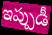
ఇప్పుడీ